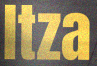
Itza